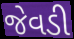
જેવડી